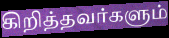
கிறித்தவர்களும்